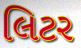
લિટર